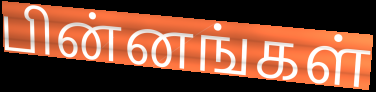
பின்னங்கள்